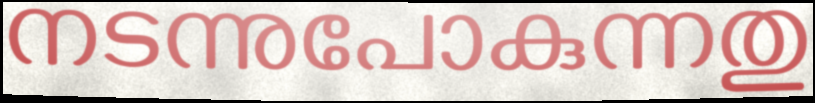
നടന്നുപോകുന്നതു